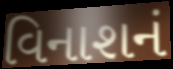
વિનાશનં